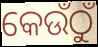
କେଉଁଠୁଁ